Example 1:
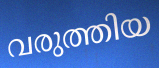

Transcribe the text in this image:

വരുത്തിയ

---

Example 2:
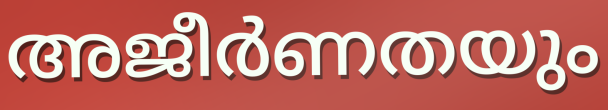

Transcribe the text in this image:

അജീർണതയും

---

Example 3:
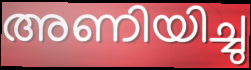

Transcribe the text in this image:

അണിയിച്ചു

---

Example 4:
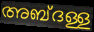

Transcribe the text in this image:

അബ്ദള്ള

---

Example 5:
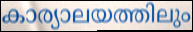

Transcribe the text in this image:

കാര്യാലയത്തിലും